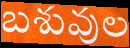
బశువుల